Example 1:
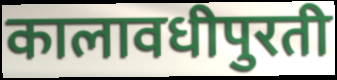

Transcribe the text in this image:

कालावधीपुरती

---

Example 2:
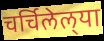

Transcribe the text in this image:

चर्चिलेल्या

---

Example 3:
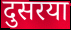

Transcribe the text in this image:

दुसरया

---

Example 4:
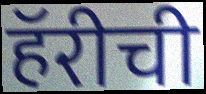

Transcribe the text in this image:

हॅरीची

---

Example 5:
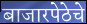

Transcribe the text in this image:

बाजारपेठेचे